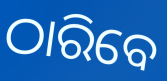
ଠାରିବେ